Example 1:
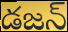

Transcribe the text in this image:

డజన్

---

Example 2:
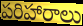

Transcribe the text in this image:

పరిహారాలు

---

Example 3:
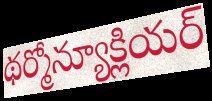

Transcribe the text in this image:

థర్మోన్యూక్లియర్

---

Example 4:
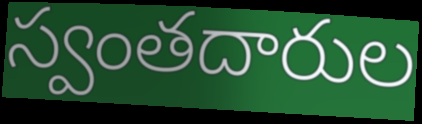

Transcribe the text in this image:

స్వంతదారుల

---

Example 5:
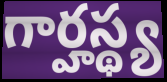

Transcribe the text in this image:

గార్హస్థ్య